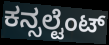
ಕನ್ಸಲ್ಟೆಂಟ್